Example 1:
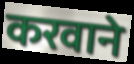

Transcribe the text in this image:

करवाने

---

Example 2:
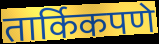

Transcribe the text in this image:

तार्किकपणे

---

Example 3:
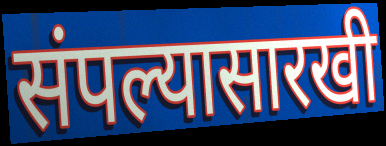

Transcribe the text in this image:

संपल्यासारखी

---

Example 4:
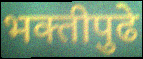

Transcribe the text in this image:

भक्तीपुढे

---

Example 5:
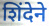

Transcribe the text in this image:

शिंदेने